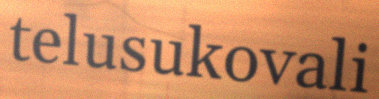
telusukovali